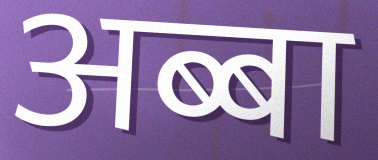
अब्बा